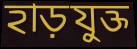
হাড়যুক্ত